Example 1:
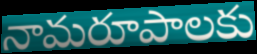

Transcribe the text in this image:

నామరూపాలకు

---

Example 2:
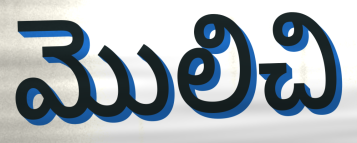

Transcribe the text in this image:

మొలిచి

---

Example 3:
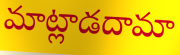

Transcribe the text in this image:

మాట్లాడదామా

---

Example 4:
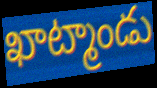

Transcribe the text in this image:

ఖాట్మాండు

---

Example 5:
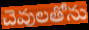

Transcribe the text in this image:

చెవులతోను